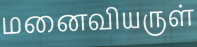
மனைவியருள்